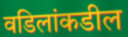
वडिलांकडील